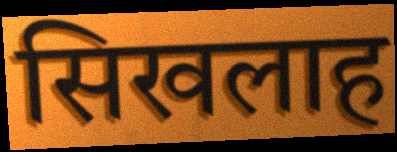
सिखलाह